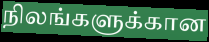
நிலங்களுக்கான